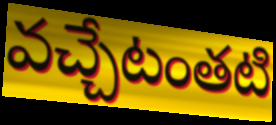
వచ్చేటంతటి